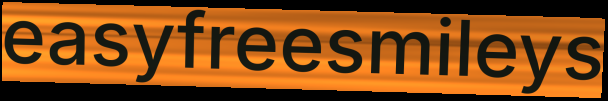
easyfreesmileys